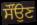
ਸੌਂਉਣ